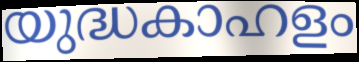
യുദ്ധകാഹളം